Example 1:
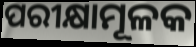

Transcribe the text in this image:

ପରୀକ୍ଷାମୂଳକ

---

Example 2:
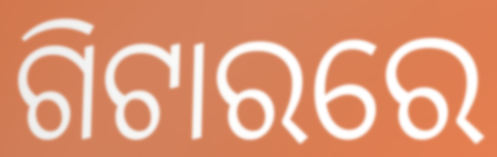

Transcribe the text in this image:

ଗିଟାରରେ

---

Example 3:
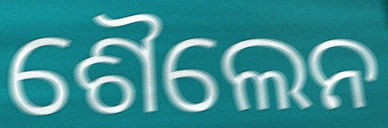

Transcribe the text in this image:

ଶୈଲେନ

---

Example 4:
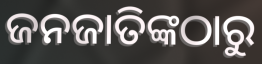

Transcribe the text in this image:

ଜନଜାତିଙ୍କଠାରୁ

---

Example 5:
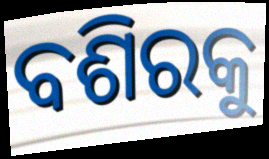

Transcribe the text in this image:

ବଶିରକୁ